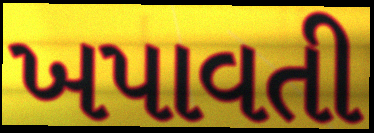
ખપાવતી